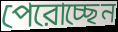
পেরোচ্ছেন